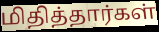
மிதித்தார்கள்